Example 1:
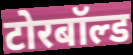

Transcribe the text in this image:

टोरबॉल्ड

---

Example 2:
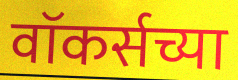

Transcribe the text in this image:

वॉकर्सच्या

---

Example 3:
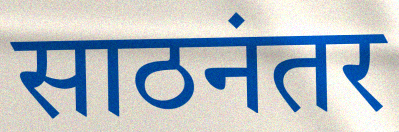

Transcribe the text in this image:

साठनंतर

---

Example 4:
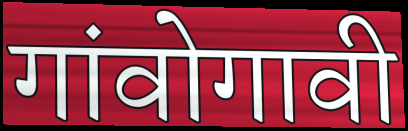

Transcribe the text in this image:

गांवोगावी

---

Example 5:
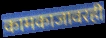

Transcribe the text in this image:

कामकाजावरही